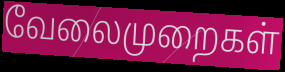
வேலைமுறைகள்